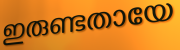
ഇരുണ്ടതായേ